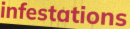
infestations